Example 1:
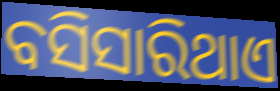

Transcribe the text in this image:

ବସିସାରିଥାଏ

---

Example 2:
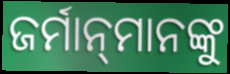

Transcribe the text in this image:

ଜର୍ମାନ୍‌ମାନଙ୍କୁ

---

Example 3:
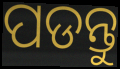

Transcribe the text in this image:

ପଡନ୍ତୁ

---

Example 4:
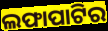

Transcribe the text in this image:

ଲଫାପାଟିର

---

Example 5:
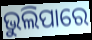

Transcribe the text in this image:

ଭୁଲିପାରେ